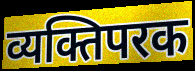
व्यक्तिपरक